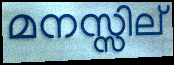
മനസ്സില്